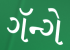
ગૅન્ગે